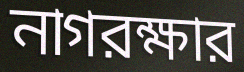
নাগরক্ষার